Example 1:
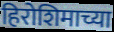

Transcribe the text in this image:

हिरोशिमाच्या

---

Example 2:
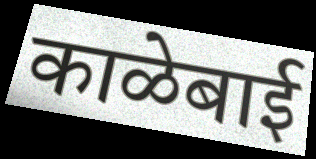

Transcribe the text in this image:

काळेबाई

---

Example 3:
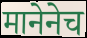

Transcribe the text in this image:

मानेनेच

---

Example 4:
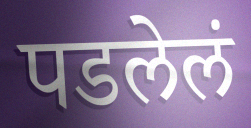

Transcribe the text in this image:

पडलेलं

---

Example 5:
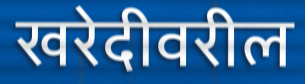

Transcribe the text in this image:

खरेदीवरील